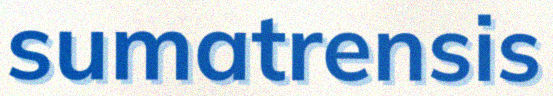
sumatrensis